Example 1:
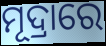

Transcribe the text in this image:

ମୂଦ୍ରାରେ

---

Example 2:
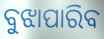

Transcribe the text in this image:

ବୁଝାପାରିବ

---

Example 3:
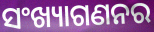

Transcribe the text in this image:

ସଂଖ୍ୟାଗଣନର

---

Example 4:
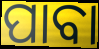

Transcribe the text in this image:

ପାବା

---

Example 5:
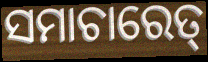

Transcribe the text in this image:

ସମାଚାରେତ୍